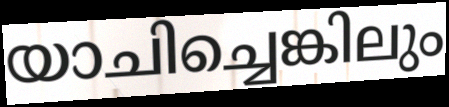
യാചിച്ചെങ്കിലും